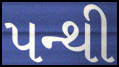
પન્થી